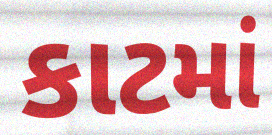
કાટમાં